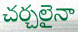
చర్చలైనా